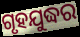
ଗୃହଯୁଦ୍ଧର